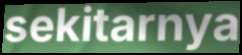
sekitarnya